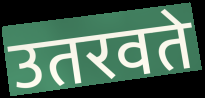
उतरवते